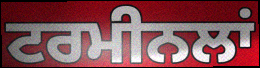
ਟਰਮੀਨਲਾਂ